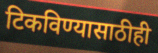
टिकविण्यासाठीही